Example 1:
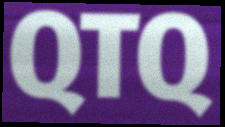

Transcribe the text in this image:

QTQ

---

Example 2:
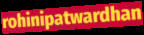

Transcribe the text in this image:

rohinipatwardhan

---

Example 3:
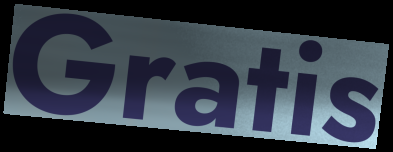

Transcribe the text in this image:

Gratis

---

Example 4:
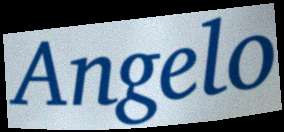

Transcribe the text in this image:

Angelo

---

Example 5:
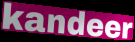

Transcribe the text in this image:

kandeer